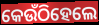
କେଉଁଠିହେଲେ